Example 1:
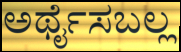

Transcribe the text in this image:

ಅರ್ಥೈಸಬಲ್ಲ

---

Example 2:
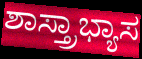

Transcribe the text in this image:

ಶಾಸ್ತ್ರಾಭ್ಯಾಸ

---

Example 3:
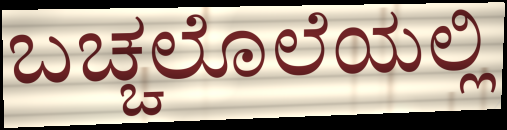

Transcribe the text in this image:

ಬಚ್ಚಲೊಲೆಯಲ್ಲಿ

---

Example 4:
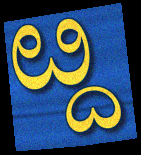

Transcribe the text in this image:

ೞ್ದ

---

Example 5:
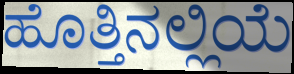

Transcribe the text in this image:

ಹೊತ್ತಿನಲ್ಲಿಯೆ